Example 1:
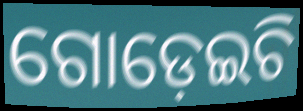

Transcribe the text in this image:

ଗୋଡ଼େଇଚି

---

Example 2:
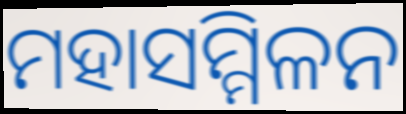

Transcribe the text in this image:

ମହାସମ୍ମିଳନ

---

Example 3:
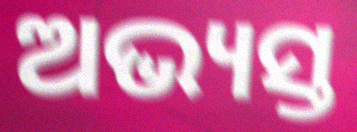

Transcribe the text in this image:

ଅଭ୍ୟସ୍ତ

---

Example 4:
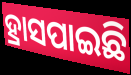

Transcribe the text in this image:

ହ୍ରାସପାଇଛି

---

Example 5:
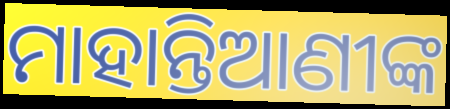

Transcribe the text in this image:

ମାହାନ୍ତିଆଣୀଙ୍କ